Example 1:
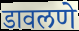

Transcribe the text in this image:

डावलणे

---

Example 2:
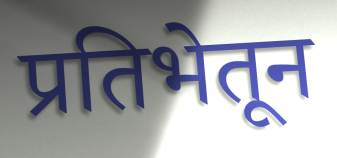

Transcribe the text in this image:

प्रतिभेतून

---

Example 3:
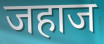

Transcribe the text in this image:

जहाज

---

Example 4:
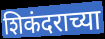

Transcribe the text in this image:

शिकंदराच्या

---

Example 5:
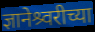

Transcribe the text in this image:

ज्ञानेश्र्वरीच्या